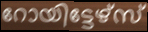
റോയിട്ടേഴ്സ്